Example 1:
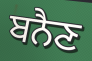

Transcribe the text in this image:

ਬਨੈਣ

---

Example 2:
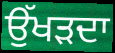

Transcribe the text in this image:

ਉੱਖੜਦਾ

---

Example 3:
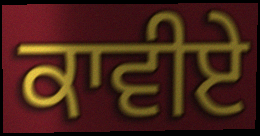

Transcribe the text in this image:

ਕਾਵੀਏ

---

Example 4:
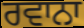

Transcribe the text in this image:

ਰਵਾਨਾ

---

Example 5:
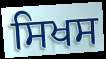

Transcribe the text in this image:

ਸਿਖਸ